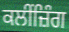
ਕਲੀਂਜ਼ਿੰਗ